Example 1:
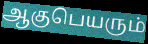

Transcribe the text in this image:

ஆகுபெயரும்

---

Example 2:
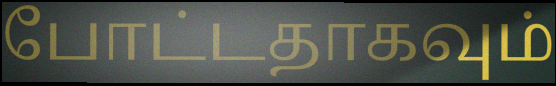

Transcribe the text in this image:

போட்டதாகவும்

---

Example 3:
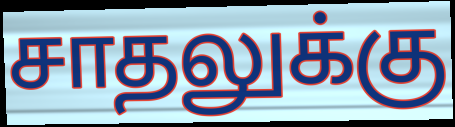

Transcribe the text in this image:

சாதலுக்கு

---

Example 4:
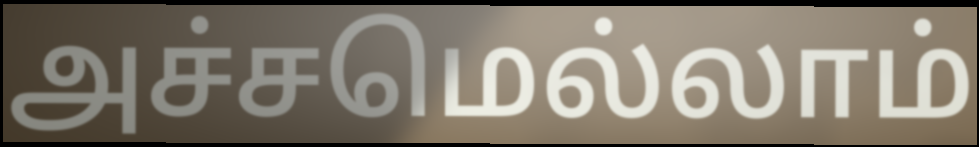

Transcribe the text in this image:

அச்சமெல்லாம்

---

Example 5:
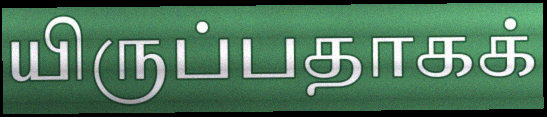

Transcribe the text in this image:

யிருப்பதாகக்